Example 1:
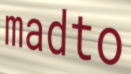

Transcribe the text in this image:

madto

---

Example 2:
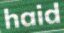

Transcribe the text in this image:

haid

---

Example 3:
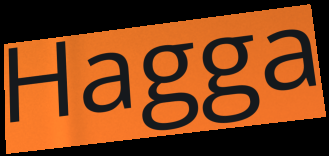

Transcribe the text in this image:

Hagga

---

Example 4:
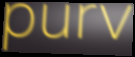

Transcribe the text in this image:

purv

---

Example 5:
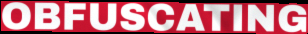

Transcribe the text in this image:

OBFUSCATING